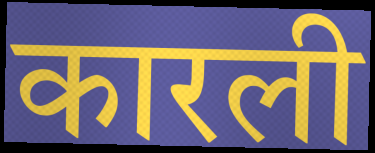
कारली